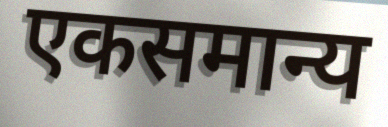
एकसमान्य